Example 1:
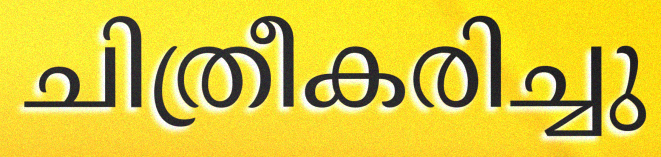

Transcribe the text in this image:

ചിത്രീകരിച്ചു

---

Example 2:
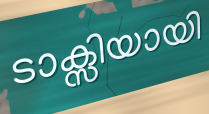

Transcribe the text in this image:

ടാക്സിയായി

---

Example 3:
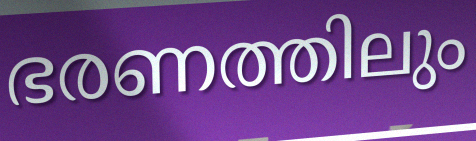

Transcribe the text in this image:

ഭരണത്തിലും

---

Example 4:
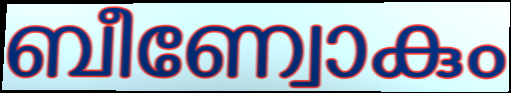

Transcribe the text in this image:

ബീണ്വോകും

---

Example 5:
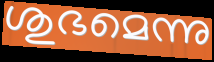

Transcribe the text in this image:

ശുഭമെന്നു